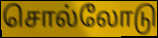
சொல்லோடு